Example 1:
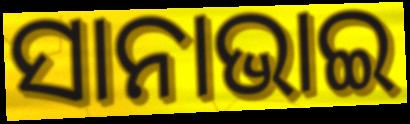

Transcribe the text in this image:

ସାନାଭାଇ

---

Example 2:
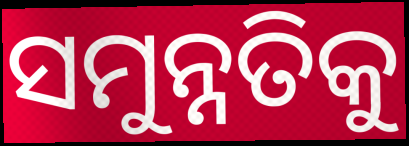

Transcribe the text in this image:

ସମୁନ୍ନତିକୁ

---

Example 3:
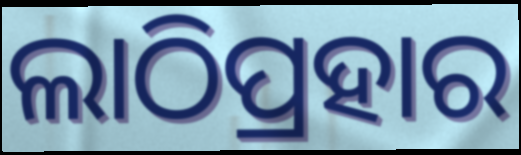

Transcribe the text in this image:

ଲାଠିପ୍ରହାର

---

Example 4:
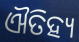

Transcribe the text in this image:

ଐତିହ୍ଯ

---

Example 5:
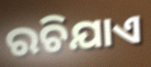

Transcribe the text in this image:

ରଚିଯାଏ